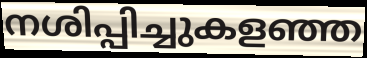
നശിപ്പിച്ചുകളഞ്ഞ